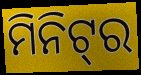
ମିନିଟ୍‌ର